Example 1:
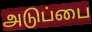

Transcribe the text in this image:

அடுப்பை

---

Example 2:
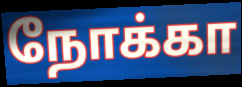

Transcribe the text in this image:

நோக்கா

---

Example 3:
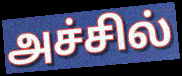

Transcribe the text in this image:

அச்சில்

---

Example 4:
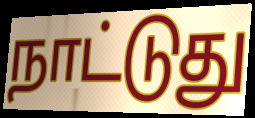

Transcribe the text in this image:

நாட்டுது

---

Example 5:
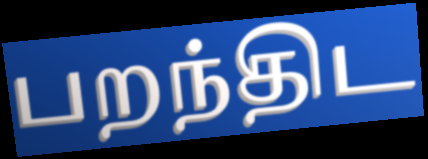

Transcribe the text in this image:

பறந்திட